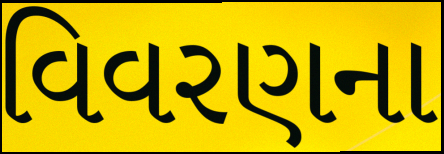
વિવરણના